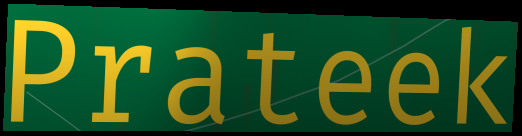
Prateek